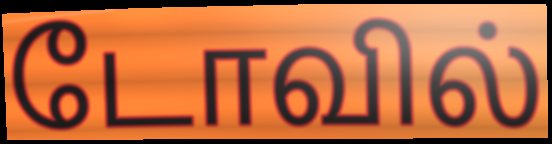
டோவில்